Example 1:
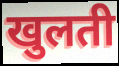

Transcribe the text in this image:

खुलती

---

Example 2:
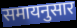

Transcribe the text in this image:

समायनुसार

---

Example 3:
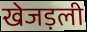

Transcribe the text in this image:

खेजड़ली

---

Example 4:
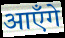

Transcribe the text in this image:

आएँगे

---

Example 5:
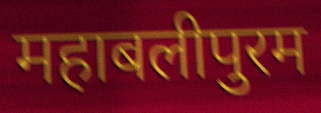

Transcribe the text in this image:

महाबलीपुरम